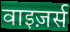
वाइज़र्स